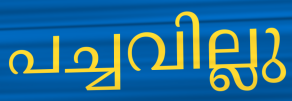
പച്ചവില്ലു